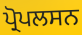
ਪ੍ਰੋਪਲਸਨ